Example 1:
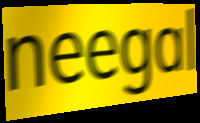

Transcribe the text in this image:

neegal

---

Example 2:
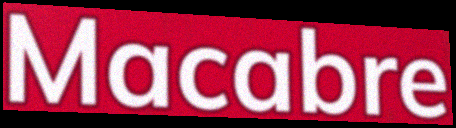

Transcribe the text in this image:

Macabre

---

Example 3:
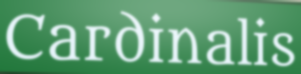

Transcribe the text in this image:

Cardinalis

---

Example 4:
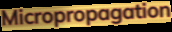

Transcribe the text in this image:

Micropropagation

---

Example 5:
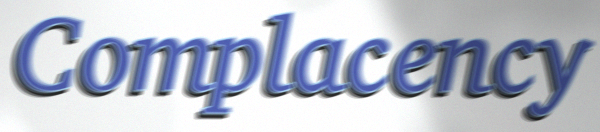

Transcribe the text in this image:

Complacency